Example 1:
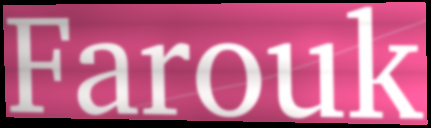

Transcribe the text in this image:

Farouk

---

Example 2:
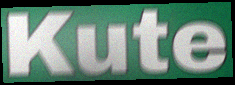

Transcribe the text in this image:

Kute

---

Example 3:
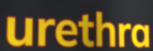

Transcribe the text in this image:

urethra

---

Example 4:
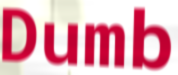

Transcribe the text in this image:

Dumb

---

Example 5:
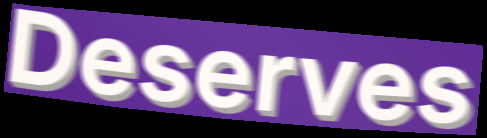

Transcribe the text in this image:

Deserves